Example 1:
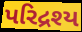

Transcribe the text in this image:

પરિદ્રશ્ય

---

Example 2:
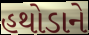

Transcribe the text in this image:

હથોડાને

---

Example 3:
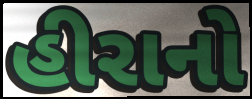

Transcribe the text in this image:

હીરાનો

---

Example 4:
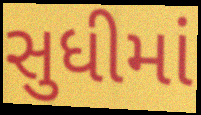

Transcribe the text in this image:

સુધીમાં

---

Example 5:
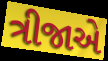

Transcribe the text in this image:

ત્રીજાએ